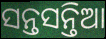
ସନ୍ତସନ୍ତିଆ